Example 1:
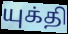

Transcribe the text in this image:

யுக்தி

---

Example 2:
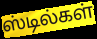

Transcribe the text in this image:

ஸ்டில்கள்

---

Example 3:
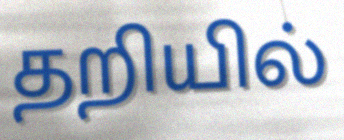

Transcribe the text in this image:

தறியில்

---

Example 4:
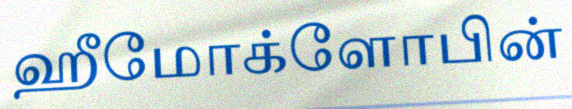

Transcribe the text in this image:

ஹீமோக்ளோபின்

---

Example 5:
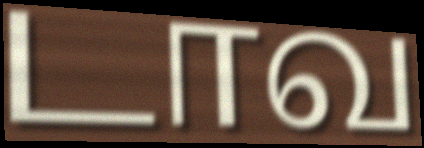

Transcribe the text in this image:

டாவ